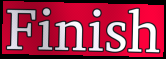
Finish